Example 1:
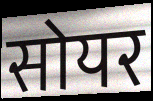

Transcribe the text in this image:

सोयर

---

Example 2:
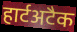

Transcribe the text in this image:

हार्टअटैक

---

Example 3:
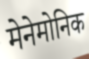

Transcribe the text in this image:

मेनेमोनिक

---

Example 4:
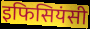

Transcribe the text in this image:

इफिसियंसी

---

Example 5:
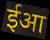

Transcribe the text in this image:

ईआ